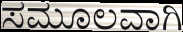
ಸಮೂಲವಾಗಿ